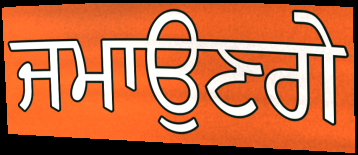
ਜਮਾਉਣਗੇ